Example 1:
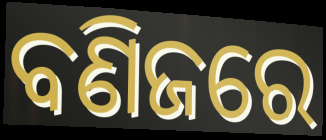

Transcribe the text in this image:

ବଣିଜରେ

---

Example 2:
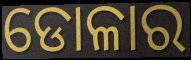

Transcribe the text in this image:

ଡୋଳାର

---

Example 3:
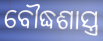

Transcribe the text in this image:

ବୌଦ୍ଧଶାସ୍ତ୍ର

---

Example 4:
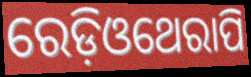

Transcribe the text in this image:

ରେଡ଼ିଓଥେରାପି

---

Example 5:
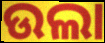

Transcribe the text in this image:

ଉଲା